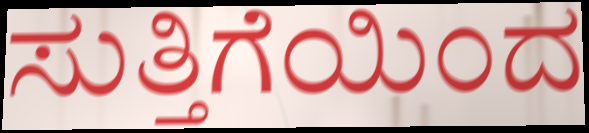
ಸುತ್ತಿಗೆಯಿಂದ